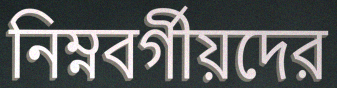
নিম্নবর্গীয়দের